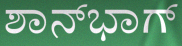
ಶಾನ್‍ಭಾಗ್